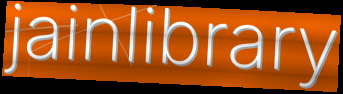
jainlibrary